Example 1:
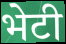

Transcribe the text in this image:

भेटी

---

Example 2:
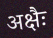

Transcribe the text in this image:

अक्षैः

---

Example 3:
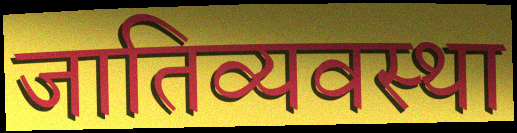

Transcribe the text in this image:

जातिव्यवस्था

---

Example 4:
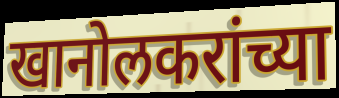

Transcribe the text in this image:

खानोलकरांच्या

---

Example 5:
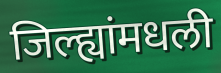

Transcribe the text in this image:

जिल्ह्यांमधली